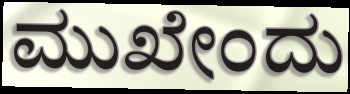
ಮುಖೇಂದು